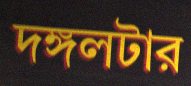
দঙ্গলটার